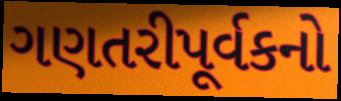
ગણતરીપૂર્વકનો